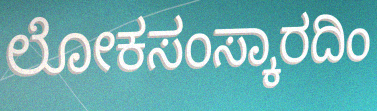
ಲೋಕಸಂಸ್ಕಾರದಿಂ